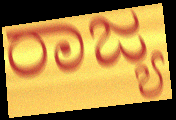
ರಾಜ್ಯ